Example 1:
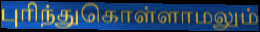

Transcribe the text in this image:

புரிந்துகொள்ளாமலும்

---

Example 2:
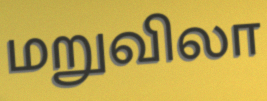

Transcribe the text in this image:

மறுவிலா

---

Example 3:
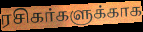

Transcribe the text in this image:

ரசிகர்களுக்காக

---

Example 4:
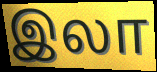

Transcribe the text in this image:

இலா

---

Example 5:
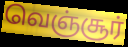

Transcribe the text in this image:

வெஞ்சூர்